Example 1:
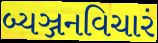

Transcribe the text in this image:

બ્યઞ્જનવિચારં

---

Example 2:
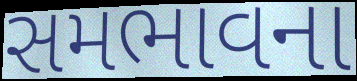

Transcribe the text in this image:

સમભાવના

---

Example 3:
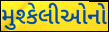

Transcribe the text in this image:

મુશ્કેલીઓનો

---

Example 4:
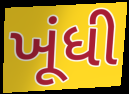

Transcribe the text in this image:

ખૂંધી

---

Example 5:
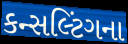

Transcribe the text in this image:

કન્સલ્ટિંગના